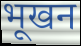
भूखन